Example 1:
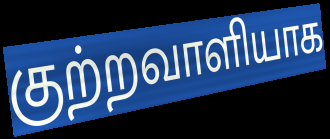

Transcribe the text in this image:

குற்றவாளியாக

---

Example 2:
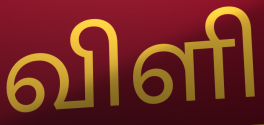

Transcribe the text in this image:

விளி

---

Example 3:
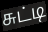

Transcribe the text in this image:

சுட்டி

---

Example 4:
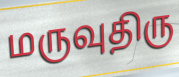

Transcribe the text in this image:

மருவுதிரு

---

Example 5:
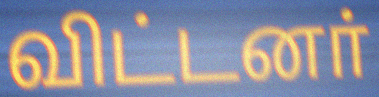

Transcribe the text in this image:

விட்டனர்